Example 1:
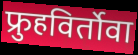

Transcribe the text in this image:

फ्रुहविर्तोवा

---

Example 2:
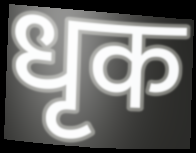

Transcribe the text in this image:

धृक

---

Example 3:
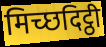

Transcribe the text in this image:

मिच्छदिट्ठी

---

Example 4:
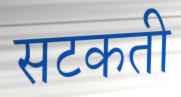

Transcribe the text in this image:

सटकती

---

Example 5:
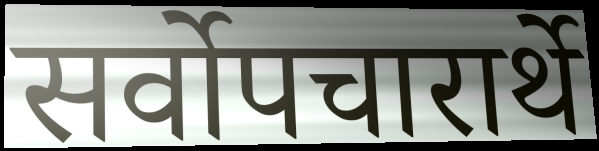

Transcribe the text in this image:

सर्वोपचारार्थे